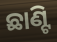
ଛାଣ୍ଟି